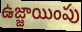
ఉజ్జాయింపు